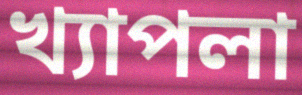
খ্যাপলা